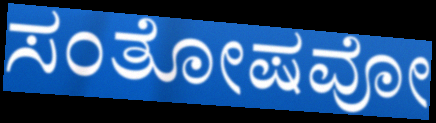
ಸಂತೋಷವೋ